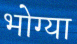
भोग्या